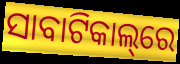
ସାବାଟିକାଲ୍‌ରେ